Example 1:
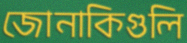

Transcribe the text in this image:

জোনাকিগুলি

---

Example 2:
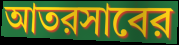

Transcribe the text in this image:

আতরসাবের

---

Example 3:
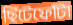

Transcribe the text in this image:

ছিঁটেফোঁটা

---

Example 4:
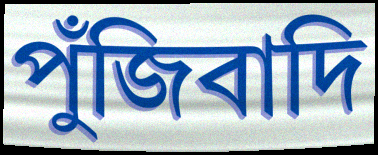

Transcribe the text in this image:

পুঁজিবাদি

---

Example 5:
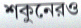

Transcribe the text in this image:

শকুনেরও